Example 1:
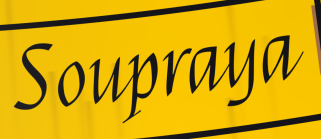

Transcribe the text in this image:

Soupraya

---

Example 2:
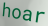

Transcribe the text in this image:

hoar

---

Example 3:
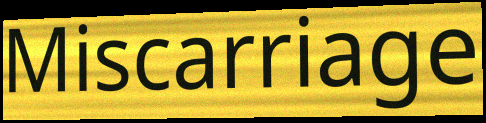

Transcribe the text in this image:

Miscarriage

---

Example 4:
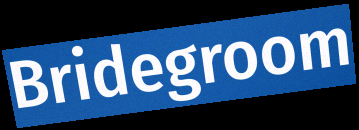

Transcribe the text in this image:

Bridegroom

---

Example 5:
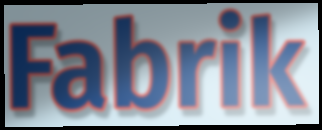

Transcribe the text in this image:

Fabrik